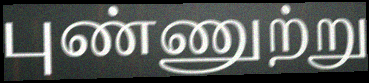
புண்ணுற்று